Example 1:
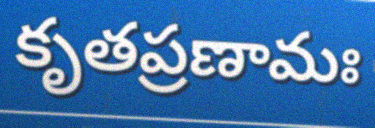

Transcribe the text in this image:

కృతప్రణామః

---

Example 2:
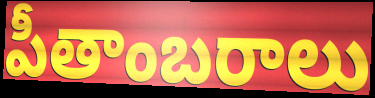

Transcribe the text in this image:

పీతాంబరాలు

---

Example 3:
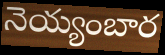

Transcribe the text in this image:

నెయ్యంబార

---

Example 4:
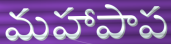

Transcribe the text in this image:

మహాపాప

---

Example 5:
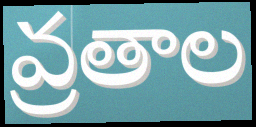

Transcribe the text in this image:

వ్రతాల